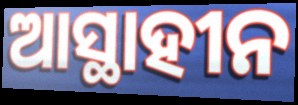
ଆସ୍ଥାହୀନ